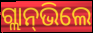
ଗ୍ଲାନ୍‌ଭିଲେ